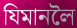
যিমানলৈ